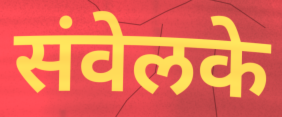
संवेलके